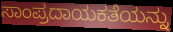
ಸಾಂಪ್ರದಾಯಕತೆಯನ್ನು